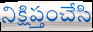
నిక్షిప్తంచేసి